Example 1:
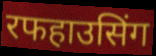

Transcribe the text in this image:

रफहाउसिंग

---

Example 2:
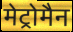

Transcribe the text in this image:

मेट्रोमैन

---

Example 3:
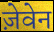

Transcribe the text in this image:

ज़ेवेन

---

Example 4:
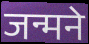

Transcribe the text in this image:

जन्मने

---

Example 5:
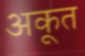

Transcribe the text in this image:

अकूत